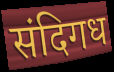
संदिगध